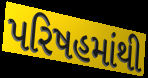
પરિષહમાંથી